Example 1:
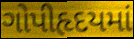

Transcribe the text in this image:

ગોપીહૃદયમાં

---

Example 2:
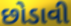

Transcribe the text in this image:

છોડાવી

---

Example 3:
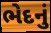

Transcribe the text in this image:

ભેદનું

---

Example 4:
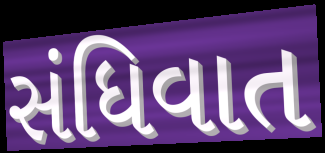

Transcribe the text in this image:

સંધિવાત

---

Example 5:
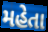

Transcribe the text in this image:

મહેતા